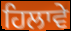
ਹਿਲਾਵੇ